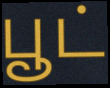
பூட்